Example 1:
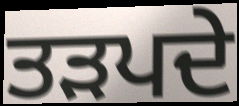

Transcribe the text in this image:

ਤੜਪਦੇ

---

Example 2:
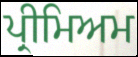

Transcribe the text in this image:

ਪ੍ਰੀਮਿਅਮ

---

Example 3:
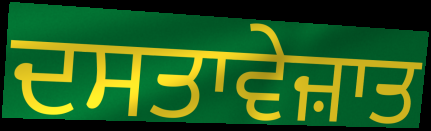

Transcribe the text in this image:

ਦਸਤਾਵੇਜ਼ਾਤ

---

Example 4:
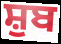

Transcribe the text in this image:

ਸ਼ੁਬ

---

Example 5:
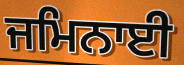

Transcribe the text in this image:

ਜਮਿਨਾਈ